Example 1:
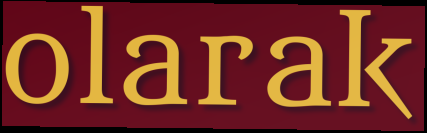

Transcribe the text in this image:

olarak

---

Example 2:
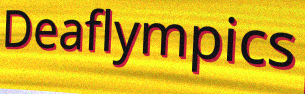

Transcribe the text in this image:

Deaflympics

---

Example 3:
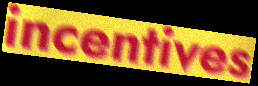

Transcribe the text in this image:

incentives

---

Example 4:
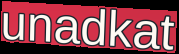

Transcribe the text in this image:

unadkat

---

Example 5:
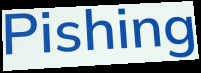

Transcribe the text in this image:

Pishing